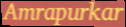
Amrapurkar